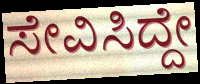
ಸೇವಿಸಿದ್ದೇ